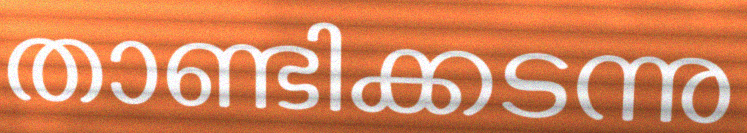
താണ്ടിക്കടന്നു